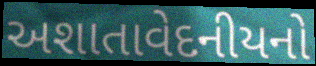
અશાતાવેદનીયનો